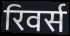
रिवर्स